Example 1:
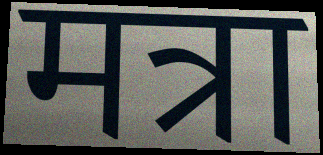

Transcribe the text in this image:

मत्रा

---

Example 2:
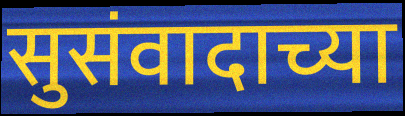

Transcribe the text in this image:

सुसंवादाच्या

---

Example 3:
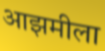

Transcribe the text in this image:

आझमीला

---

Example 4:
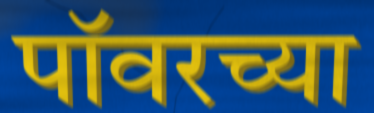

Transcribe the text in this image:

पॉवरच्या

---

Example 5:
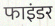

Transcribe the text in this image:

फाइंडर